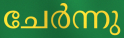
ചേർന്നു